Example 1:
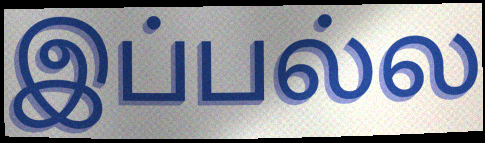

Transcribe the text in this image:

இப்பல்ல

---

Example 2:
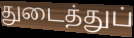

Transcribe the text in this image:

துடைத்துப்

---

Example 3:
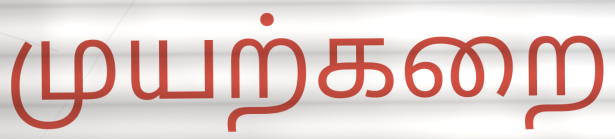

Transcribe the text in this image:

முயற்கறை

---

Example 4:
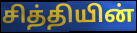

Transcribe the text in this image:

சித்தியின்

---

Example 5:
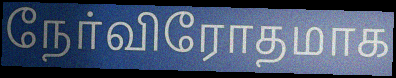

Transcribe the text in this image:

நேர்விரோதமாக